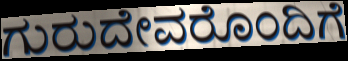
ಗುರುದೇವರೊಂದಿಗೆ